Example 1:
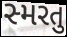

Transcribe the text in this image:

સ્મરતુ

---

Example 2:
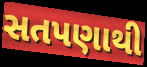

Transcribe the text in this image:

સતપણાથી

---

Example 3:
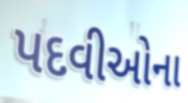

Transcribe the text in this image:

પદવીઓના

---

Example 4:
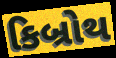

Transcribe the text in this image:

કિબ્રોથ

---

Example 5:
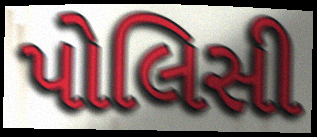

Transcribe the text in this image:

પોલિસી